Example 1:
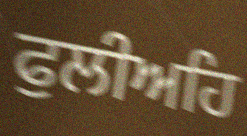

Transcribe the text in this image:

ਫੁਲੀਅਹਿ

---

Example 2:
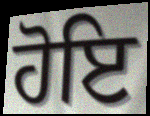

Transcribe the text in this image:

ਹੋਇ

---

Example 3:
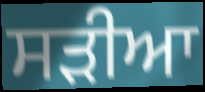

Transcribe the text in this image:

ਸੜੀਆ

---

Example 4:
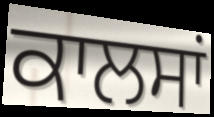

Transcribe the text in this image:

ਕਾਲਸਾਂ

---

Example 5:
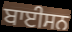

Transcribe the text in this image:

ਬਾਈਸਨ